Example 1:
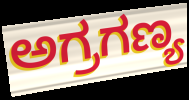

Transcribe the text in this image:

ಅಗ್ರಗಣ್ಯ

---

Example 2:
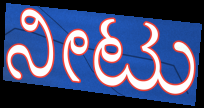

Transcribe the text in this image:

ನೀಟು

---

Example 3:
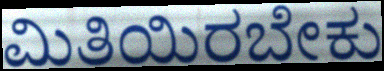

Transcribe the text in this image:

ಮಿತಿಯಿರಬೇಕು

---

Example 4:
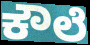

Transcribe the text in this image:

ಕೌಲೆ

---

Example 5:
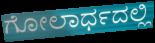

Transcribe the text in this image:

ಗೋಲಾರ್ಧದಲ್ಲಿ